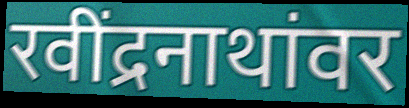
रवींद्रनाथांवर